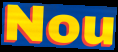
Nou